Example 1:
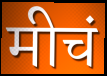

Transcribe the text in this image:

मीचं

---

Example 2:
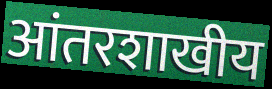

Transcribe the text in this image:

आंतरशाखीय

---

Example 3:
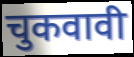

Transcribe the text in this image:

चुकवावी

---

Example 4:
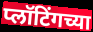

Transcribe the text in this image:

प्लॉटिंगच्या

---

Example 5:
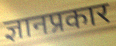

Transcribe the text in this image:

ज्ञानप्रकार